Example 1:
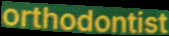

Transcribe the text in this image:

orthodontist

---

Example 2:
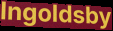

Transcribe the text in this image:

Ingoldsby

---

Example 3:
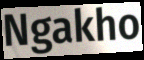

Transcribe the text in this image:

Ngakho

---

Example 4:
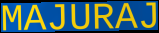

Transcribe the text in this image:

MAJURAJ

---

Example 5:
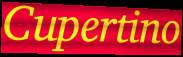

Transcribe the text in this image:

Cupertino